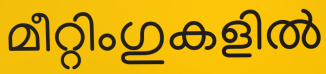
മീറ്റിംഗുകളിൽ